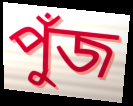
পুঁজ